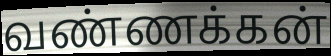
வண்ணக்கன்